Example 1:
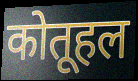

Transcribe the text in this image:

कोतूहल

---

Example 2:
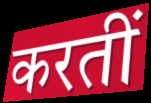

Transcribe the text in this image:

करतीं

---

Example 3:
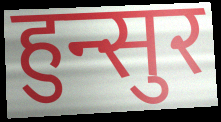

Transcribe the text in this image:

हुन्सुर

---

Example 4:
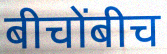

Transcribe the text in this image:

बीचोंबीच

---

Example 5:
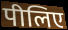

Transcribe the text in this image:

पीलिए